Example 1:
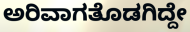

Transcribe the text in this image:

ಅರಿವಾಗತೊಡಗಿದ್ದೇ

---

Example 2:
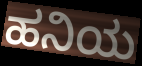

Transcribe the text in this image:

ಹನಿಯ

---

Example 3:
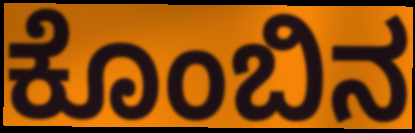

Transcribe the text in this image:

ಕೊಂಬಿನ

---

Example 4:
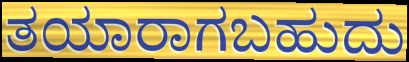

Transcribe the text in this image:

ತಯಾರಾಗಬಹುದು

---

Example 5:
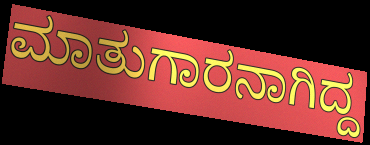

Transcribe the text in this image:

ಮಾತುಗಾರನಾಗಿದ್ದ